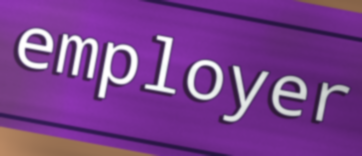
employer